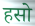
हसो